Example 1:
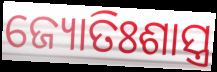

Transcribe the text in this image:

ଜ୍ୟୋତିଃଶାସ୍ତ୍ର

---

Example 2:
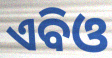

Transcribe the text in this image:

ଏବିଓ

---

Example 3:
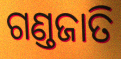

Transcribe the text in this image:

ଗଣ୍ଡଜାତି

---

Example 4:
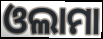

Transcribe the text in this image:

ଓଲାମା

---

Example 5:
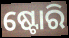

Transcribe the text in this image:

ଷ୍ଟୋରି